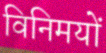
विनिमयों